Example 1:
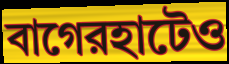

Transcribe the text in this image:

বাগেরহাটেও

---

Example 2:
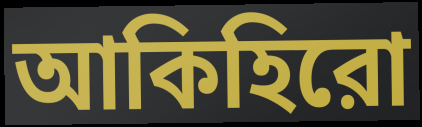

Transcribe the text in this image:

আকিহিরো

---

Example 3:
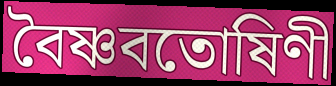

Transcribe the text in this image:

বৈষ্ণবতোষিণী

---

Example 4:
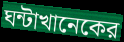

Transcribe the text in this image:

ঘন্টাখানেকের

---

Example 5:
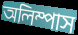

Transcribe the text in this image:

অলিম্পাস